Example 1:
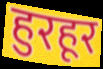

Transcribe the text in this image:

हुरहूर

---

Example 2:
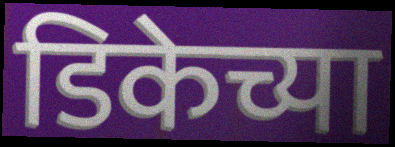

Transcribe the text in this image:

डिकेच्या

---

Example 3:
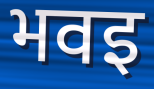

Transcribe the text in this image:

भवइ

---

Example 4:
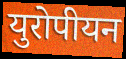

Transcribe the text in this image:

युरोपीयन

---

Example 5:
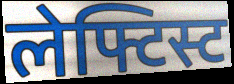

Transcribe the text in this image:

लेफ्टिस्ट